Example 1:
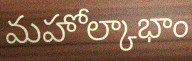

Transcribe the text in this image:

మహోల్కాభాం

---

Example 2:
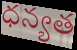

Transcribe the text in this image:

ధన్యత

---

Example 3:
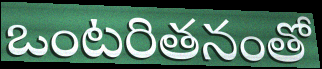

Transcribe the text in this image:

ఒంటరితనంతో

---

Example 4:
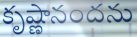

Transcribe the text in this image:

కృష్ణానందను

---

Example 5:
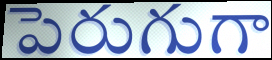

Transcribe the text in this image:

పెరుగుగా